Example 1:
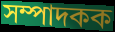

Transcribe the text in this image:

সম্পাদকক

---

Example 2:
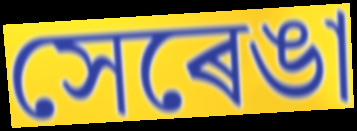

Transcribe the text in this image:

সেৰেঙা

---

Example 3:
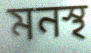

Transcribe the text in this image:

মনস্থ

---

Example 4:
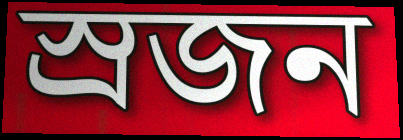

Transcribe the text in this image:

স্ৰজন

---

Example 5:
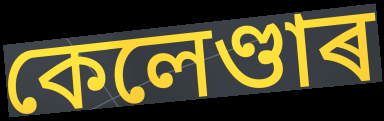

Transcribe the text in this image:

কেলেণ্ডাৰ